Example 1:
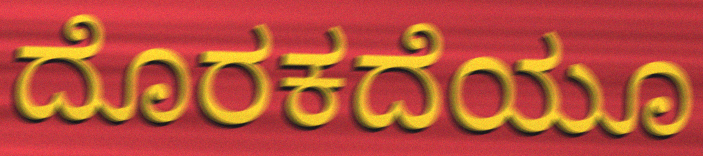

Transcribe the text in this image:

ದೊರಕದೆಯೂ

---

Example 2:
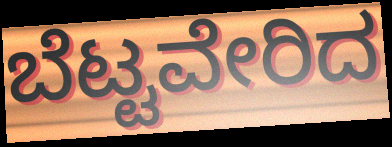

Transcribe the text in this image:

ಬೆಟ್ಟವೇರಿದ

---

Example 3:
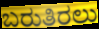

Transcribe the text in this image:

ಬರುತಿರಲು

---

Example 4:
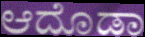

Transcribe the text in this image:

ಆದೊಡಾ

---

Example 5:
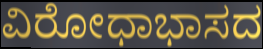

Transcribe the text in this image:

ವಿರೋಧಾಭಾಸದ